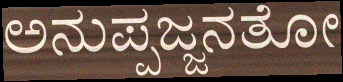
ಅನುಪ್ಪಜ್ಜನತೋ